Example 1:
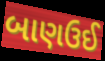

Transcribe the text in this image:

બાણઉઈ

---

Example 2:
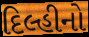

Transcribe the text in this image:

દિલ્હીનો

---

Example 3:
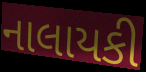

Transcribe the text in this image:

નાલાયકી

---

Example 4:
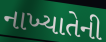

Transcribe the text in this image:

નાખ્યાતેની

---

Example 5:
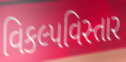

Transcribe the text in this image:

વિકલ્પવિસ્તાર